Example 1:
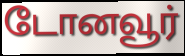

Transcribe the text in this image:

டோனவூர்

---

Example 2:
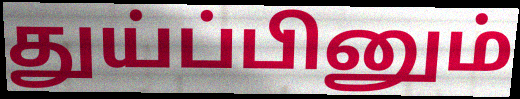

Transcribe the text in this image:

துய்ப்பினும்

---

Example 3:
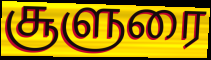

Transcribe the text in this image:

சூளுரை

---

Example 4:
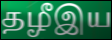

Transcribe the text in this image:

தழீஇய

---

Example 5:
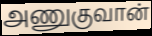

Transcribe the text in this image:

அணுகுவான்